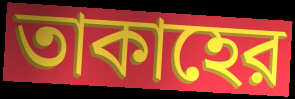
তাকাহের